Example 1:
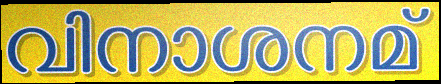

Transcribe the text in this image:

വിനാശനമ്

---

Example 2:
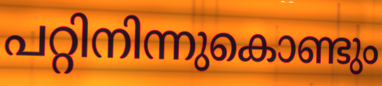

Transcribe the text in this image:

പറ്റിനിന്നുകൊണ്ടും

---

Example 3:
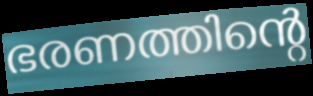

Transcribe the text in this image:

ഭരണത്തിന്റെ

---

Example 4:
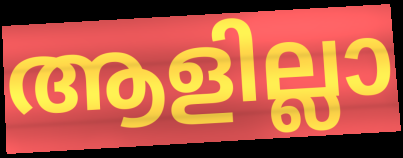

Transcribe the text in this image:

ആളില്ലാ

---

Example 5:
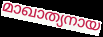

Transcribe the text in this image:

മാഖാത്യനായ